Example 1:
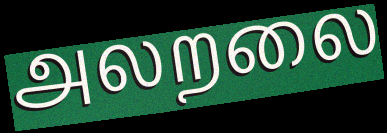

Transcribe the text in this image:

அலறலை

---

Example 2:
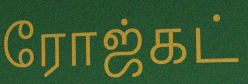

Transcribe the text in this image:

ரோஜ்கட்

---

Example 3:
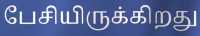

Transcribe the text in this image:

பேசியிருக்கிறது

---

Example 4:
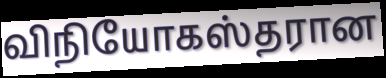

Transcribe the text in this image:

விநியோகஸ்தரான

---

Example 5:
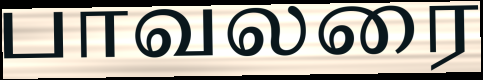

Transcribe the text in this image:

பாவலரை